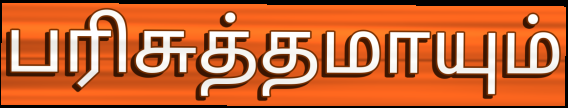
பரிசுத்தமாயும்